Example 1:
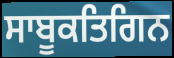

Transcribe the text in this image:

ਸਾਬੂਕਤਿਗਿਨ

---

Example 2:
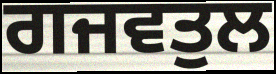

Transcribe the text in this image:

ਗਜਵਤੁਲ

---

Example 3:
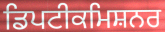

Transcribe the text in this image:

ਡਿਪਟੀਕਮਿਸ਼ਨਰ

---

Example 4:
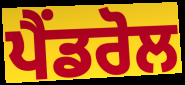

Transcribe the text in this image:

ਪੈਂਡਰੋਲ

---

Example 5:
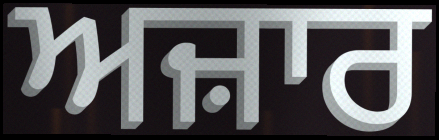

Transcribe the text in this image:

ਅਜ਼ਾਰ